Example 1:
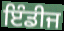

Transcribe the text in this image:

ਇੰਡੀਜ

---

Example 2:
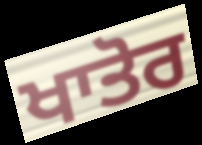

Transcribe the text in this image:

ਖਾਤੋਰ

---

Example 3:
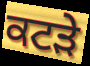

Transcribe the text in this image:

ਕਟੜੇ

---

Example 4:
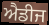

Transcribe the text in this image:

ਐਡੀਜ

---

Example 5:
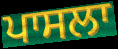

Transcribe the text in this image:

ਪਾਸਲਾ